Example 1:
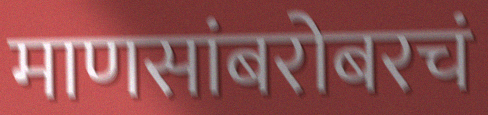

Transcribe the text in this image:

माणसांबरोबरचं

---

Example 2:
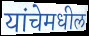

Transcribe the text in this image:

यांचेमधील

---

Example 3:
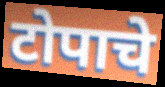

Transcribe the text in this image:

टोपाचे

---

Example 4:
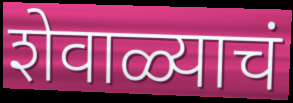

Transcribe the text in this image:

शेवाळ्याचं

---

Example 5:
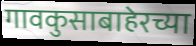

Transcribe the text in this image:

गावकुसाबाहेरच्या